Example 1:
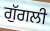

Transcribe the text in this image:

ਗੁੱਗਲੀ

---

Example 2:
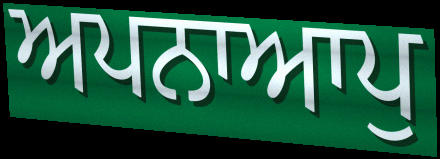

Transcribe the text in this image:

ਅਪਨਾਆਪੁ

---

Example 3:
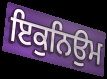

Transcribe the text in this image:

ਇਕੁਨਿਉਮ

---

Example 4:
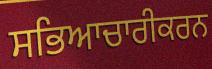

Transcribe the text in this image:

ਸਭਿਆਚਾਰੀਕਰਨ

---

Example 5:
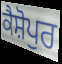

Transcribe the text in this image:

ਕੈਸ਼ੋਪੁਰ